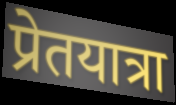
प्रेतयात्रा